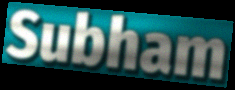
Subham